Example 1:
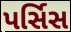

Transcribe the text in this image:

પર્સિસ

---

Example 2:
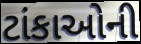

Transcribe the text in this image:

ટાંકાઓની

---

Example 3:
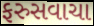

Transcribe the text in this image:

ફરુસવાચા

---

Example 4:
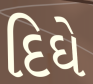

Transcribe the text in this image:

દિઘે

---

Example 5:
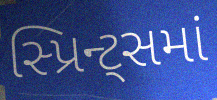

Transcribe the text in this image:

સ્પ્રિન્ટ્સમાં